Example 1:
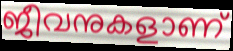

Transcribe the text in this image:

ജീവനുകളാണ്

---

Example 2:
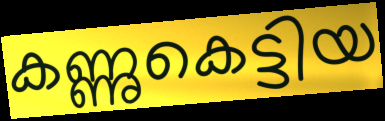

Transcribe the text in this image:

കണ്ണുകെട്ടിയ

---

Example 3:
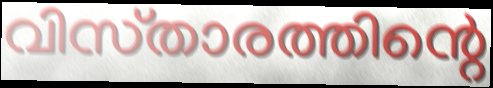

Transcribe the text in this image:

വിസ്‌താരത്തിന്റെ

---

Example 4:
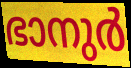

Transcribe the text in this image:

ഭാനുർ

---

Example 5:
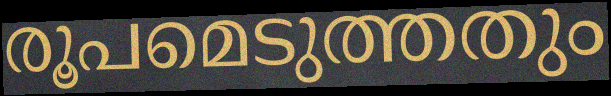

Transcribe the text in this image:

രൂപമെടുത്തതും